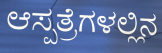
ಆಸ್ಪತ್ರೆಗಳಲ್ಲಿನ